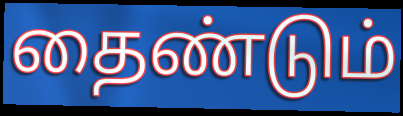
தைண்டும்